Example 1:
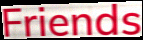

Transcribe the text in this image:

Friends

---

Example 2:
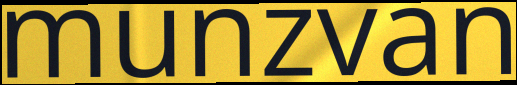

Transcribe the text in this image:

munzvan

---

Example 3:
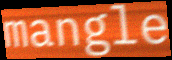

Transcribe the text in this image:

mangle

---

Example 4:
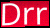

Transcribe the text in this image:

Drr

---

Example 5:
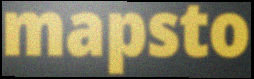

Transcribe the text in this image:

mapsto